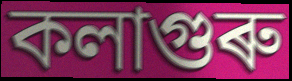
কলাগুৰু